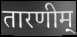
तारणीम्